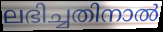
ലഭിച്ചതിനാൽ